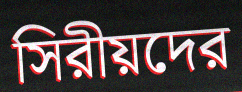
সিরীয়দের